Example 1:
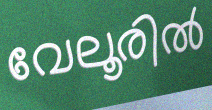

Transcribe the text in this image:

വേലൂരിൽ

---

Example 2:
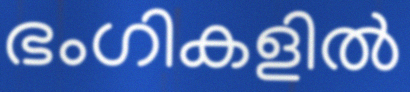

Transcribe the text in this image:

ഭംഗികളിൽ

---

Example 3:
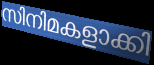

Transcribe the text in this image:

സിനിമകളാക്കി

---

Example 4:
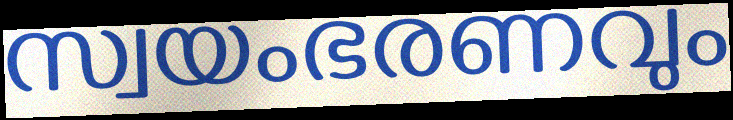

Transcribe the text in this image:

സ്വയംഭരണവും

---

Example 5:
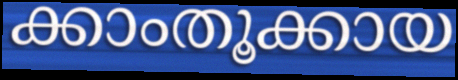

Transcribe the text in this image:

ക്കാംതൂക്കായ